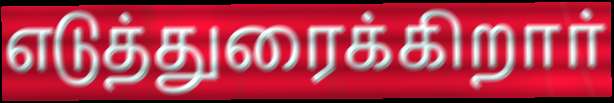
எடுத்துரைக்கிறார்